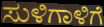
ಸುಳಿಗಾಳಿಗೆ